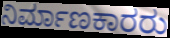
ನಿರ್ಮಾಣಕಾರರು